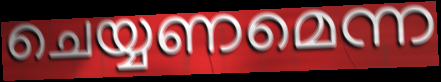
ചെയ്യണമെന്ന